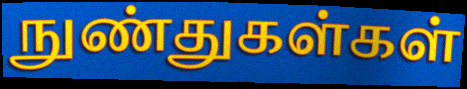
நுண்துகள்கள்